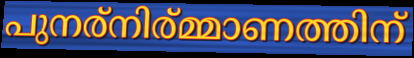
പുനര്നിര്മ്മാണത്തിന്